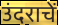
उंदराचें